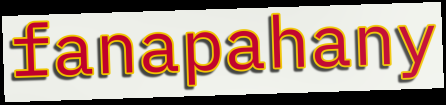
fanapahany